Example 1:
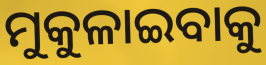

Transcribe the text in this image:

ମୁକୁଳାଇବାକୁ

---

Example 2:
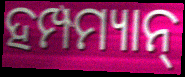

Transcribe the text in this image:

ହମ୍ପମ୍ୟାନ୍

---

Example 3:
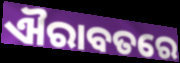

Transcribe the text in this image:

ଐରାବତରେ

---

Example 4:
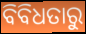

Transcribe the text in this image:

ବିବିଧତାରୁ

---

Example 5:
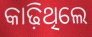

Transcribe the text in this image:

କାଢ଼ିଥିଲେ